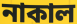
নাকাল